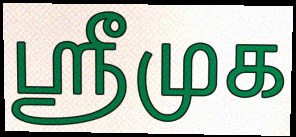
ஸ்ரீமுக